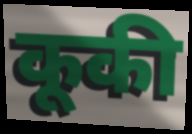
कूकी